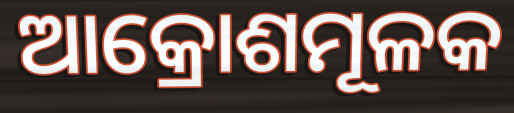
ଆକ୍ରୋଶମୂଳକ